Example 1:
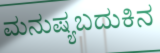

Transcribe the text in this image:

ಮನುಷ್ಯಬದುಕಿನ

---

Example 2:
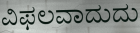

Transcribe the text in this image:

ವಿಫಲವಾದುದು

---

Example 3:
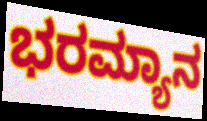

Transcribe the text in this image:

ಭರಮ್ಯಾನ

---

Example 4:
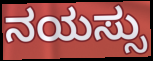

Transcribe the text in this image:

ನಯಸ್ಸು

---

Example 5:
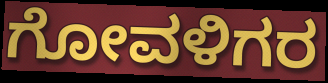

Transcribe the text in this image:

ಗೋವಳಿಗರ